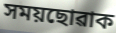
সময়ছোৱাক